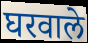
घरवाले